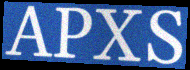
APXS